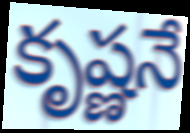
కృష్ణనే